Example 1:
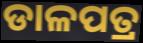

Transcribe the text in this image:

ଡାଳପତ୍ର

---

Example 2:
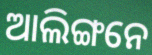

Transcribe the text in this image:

ଆଲିଙ୍ଗନେ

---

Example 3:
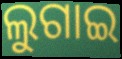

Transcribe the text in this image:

ଲୁଗାଇ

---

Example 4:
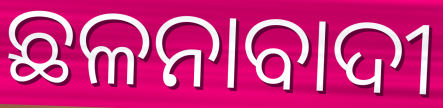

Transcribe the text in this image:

ଛଳନାବାଦୀ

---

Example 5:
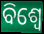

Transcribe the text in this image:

ବିଶ୍ଵେ